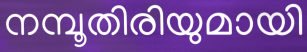
നമ്പൂതിരിയുമായി